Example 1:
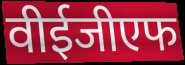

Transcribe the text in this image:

वीईजीएफ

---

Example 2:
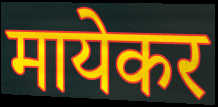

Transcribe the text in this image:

मायेकर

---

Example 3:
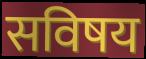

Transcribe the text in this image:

सविषय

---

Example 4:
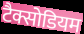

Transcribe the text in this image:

टैक्सोडियम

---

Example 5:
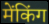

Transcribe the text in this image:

मेंकिंग